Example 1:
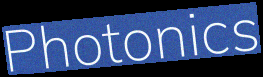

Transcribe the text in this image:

Photonics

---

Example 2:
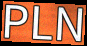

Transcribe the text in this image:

PLN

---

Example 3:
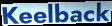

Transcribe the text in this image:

Keelback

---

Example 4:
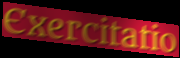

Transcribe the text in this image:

Exercitatio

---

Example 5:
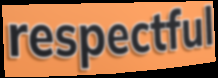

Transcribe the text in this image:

respectful